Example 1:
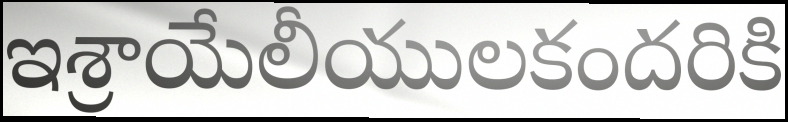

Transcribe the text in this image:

ఇశ్రాయేలీయులకందరికి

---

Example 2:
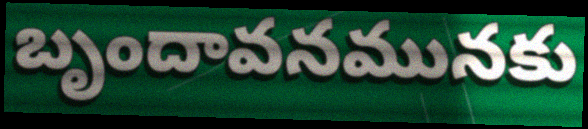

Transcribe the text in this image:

బృందావనమునకు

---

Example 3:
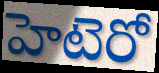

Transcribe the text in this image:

హెటెరో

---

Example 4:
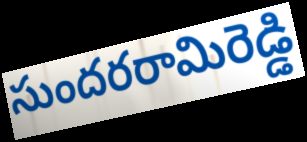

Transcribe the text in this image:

సుందరరామిరెడ్డి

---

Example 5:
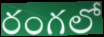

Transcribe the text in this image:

రంగలో